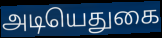
அடியெதுகை